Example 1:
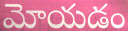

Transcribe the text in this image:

మోయడం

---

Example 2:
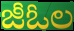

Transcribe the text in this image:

జీఓల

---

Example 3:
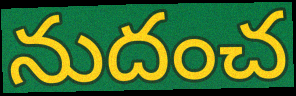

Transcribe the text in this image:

నుదంచ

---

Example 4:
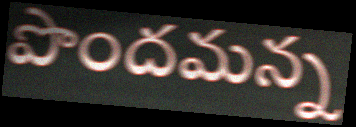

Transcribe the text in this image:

పొందమన్న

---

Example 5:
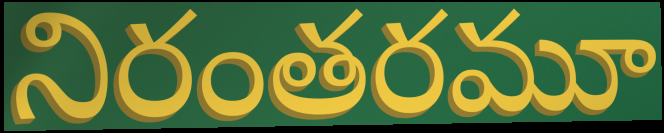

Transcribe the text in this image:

నిరంతరమూ